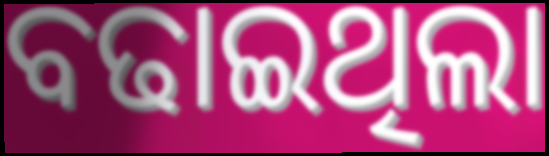
ବଢାଇଥିଲା